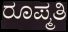
ರೂಪ್ಮತಿ